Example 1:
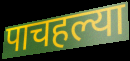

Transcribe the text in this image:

पाचहल्या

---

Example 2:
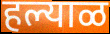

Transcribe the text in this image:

हल्याळ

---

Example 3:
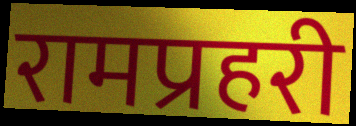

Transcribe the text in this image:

रामप्रहरी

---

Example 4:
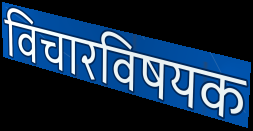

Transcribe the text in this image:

विचारविषयक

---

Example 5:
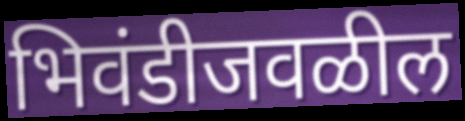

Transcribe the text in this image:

भिवंडीजवळील